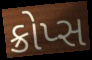
ક્રોપ્સ